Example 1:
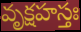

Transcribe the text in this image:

వృక్షహస్తః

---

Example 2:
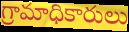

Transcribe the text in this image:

గ్రామాధికారులు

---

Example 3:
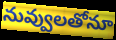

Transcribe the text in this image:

నువ్వులతోనూ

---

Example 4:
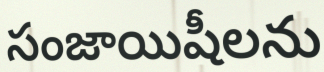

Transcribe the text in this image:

సంజాయిషీలను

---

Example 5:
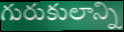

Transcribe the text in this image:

గురుకులాన్ని